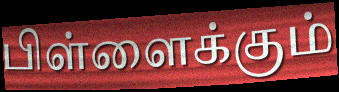
பிள்ளைக்கும்